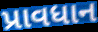
પ્રાવધાન